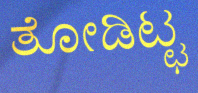
ತೋಡಿಟ್ಟ